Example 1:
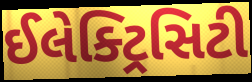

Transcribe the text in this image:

ઈલેક્ટ્રિસિટી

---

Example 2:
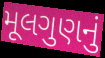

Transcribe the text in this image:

મૂલગુણનું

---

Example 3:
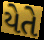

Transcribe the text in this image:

યેતે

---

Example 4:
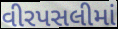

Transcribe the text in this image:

વીરપસલીમાં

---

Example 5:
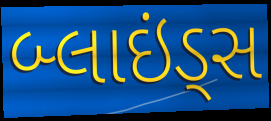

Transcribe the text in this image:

બ્લાઇંડ્સ